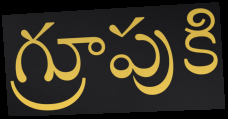
గ్రూపుకి